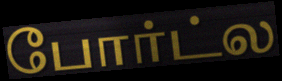
போர்ட்ல